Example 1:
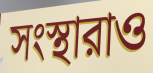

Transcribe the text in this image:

সংস্থারাও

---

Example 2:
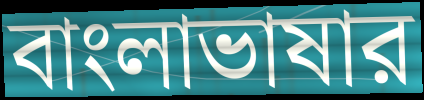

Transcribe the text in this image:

বাংলাভাষার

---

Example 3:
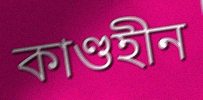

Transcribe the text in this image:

কাণ্ডহীন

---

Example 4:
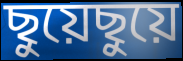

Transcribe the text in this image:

ছুয়েছুয়ে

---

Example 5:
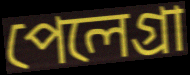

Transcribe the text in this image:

পেলেগ্রা